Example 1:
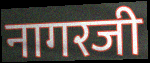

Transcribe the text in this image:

नागरजी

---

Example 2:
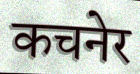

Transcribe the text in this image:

कचनेर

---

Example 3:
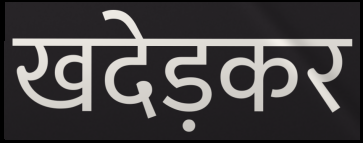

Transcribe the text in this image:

खदेड़कर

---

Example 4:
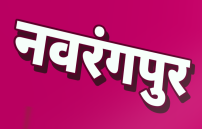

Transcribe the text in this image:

नवरंगपुर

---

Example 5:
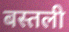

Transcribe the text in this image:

बस्तली